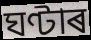
ঘণ্টাৰ